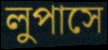
লুপাসে